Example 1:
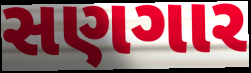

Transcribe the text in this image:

સણગાર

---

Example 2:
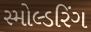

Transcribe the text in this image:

સ્મોલ્ડરિંગ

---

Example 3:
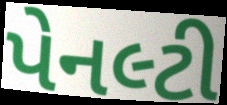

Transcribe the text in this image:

પેનલ્ટી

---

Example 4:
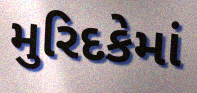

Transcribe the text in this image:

મુરિદકેમાં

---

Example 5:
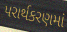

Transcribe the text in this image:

પરાર્થકરણમાં